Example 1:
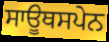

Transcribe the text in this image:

ਸਾਊਥਸਪੇਨ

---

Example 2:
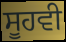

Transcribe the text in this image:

ਸੂਹਵੀ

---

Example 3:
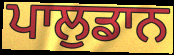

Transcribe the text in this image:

ਪਾਲੁਡਾਨ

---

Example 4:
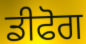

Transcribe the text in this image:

ਡੀਫੋਗ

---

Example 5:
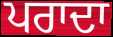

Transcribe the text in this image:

ਪਰਾਦਾ